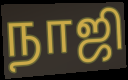
நாஜி